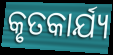
କୃତକାର୍ଯ୍ୟ